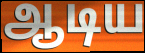
ஆடிய